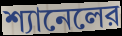
শ্যানেলের